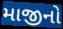
માજીનો